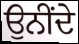
ਉਨੀਂਦੇ